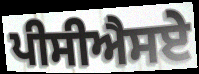
ਪੀਸੀਐਸਏ